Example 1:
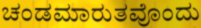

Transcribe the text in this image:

ಚಂಡಮಾರುತವೊಂದು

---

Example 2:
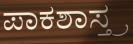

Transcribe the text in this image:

ಪಾಕಶಾಸ್ತ್ರ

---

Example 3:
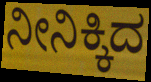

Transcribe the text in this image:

ನೀನಿಕ್ಕಿದ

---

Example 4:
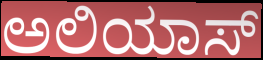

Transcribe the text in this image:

ಅಲಿಯಾಸ್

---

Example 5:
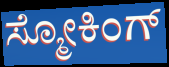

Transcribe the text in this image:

ಸ್ಮೋಕಿಂಗ್